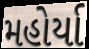
મહોર્યા